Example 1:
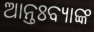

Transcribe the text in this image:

ଆନ୍ତଃବ୍ୟାଙ୍କ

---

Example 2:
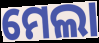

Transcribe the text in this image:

ମେଲା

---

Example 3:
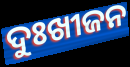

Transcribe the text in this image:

ଦୁଃଖୀଜନ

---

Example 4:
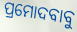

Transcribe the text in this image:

ପ୍ରମୋଦବାବୁ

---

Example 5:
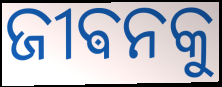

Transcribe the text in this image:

ଜୀଵନକୁ